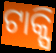
ଟାକ୍ସି